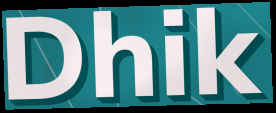
Dhik